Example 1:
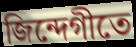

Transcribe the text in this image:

জিন্দেগীতে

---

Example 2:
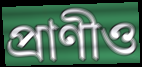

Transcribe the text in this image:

প্রাণীও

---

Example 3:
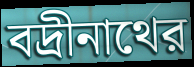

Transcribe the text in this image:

বদ্রীনাথের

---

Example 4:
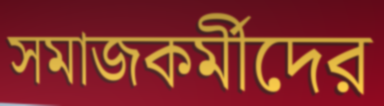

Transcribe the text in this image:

সমাজকর্মীদের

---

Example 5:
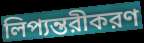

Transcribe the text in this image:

লিপ্যন্তরীকরণ